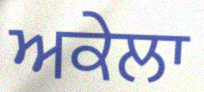
ਅਕੇਲਾ